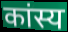
कांस्य